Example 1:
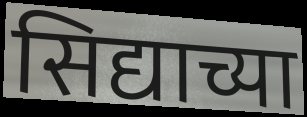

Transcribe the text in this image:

सिद्याच्या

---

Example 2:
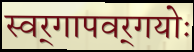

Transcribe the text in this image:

स्वर्गापवर्गयोः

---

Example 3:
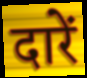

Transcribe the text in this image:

दारें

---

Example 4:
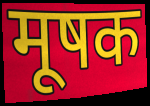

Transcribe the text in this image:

मूषक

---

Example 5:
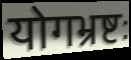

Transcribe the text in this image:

योगभ्रष्टः